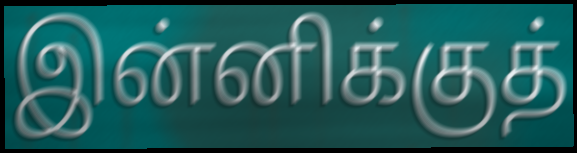
இன்னிக்குத்